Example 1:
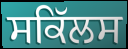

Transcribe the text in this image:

ਸਕਿੱਲਸ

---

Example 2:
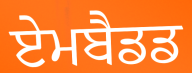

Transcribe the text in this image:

ਏਮਬੈਡਡ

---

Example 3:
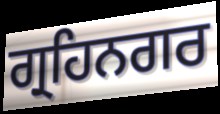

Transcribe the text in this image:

ਗ੍ਰਹਿਨਗਰ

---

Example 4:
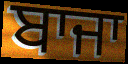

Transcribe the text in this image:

ਬਾਜਾ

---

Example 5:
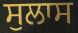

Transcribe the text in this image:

ਸੁਲਾਸ